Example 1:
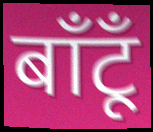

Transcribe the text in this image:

बाँटूँ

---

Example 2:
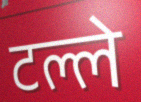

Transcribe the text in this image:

टल्ले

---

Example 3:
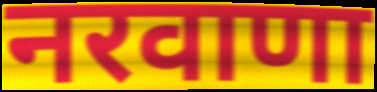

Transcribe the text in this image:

नरवाणा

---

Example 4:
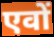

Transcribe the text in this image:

एवों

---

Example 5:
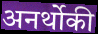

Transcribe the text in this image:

अनर्थोकी